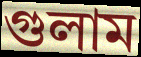
গুলাম